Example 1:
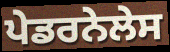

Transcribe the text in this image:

ਪੇਡਰਨੇਲੇਸ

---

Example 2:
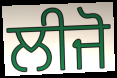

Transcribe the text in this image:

ਲੀਜੋ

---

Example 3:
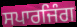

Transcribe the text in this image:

ਸਪਾਰਜਿੰਗ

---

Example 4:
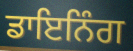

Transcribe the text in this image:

ਡਾਇਨਿੰਗ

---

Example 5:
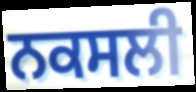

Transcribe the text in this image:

ਨਕਸਲੀ